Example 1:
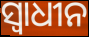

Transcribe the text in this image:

ସ୍ୱାଧୀନ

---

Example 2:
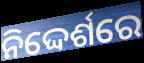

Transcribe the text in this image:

ନିଦ୍ଦେର୍ଶରେ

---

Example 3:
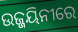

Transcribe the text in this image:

ଉଜ୍ଜୟିନୀରେ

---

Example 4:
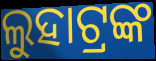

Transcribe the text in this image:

ଲୁହାଟ୍ରଙ୍କ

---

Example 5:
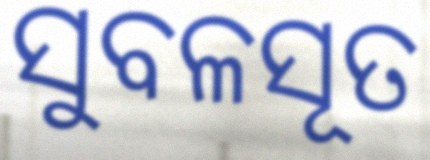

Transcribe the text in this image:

ସୁବଳସୂତ